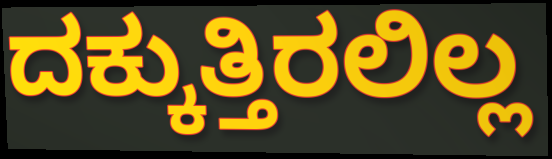
ದಕ್ಕುತ್ತಿರಲಿಲ್ಲ